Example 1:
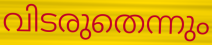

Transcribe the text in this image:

വിടരുതെന്നും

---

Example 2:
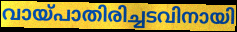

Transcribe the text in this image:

വായ്പാതിരിച്ചടവിനായി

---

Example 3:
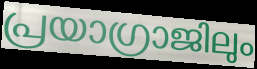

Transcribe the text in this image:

പ്രയാഗ്രാജിലും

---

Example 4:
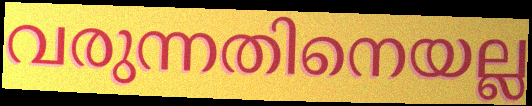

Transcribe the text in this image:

വരുന്നതിനെയല്ല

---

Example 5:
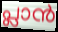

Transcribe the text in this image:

പ്ലാൻ